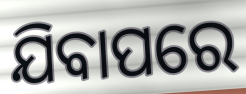
ଯିବାପରେ